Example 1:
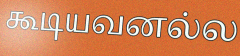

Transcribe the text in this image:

கூடியவனல்ல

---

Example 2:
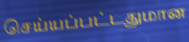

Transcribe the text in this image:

செய்யப்பட்டதுமான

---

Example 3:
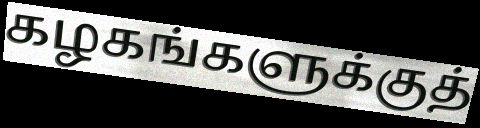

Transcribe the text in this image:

கழகங்களுக்குத்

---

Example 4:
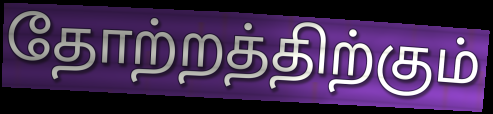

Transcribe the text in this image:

தோற்றத்திற்கும்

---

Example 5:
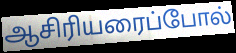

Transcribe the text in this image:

ஆசிரியரைப்போல்